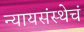
न्यायसंस्थेचं